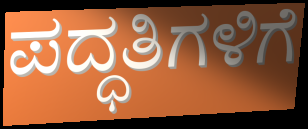
ಪದ್ಧತಿಗಳಿಗೆ